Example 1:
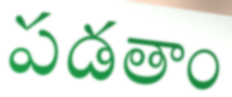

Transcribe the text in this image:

పడతాం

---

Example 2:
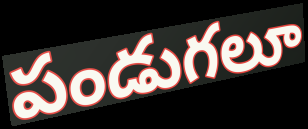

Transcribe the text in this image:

పండుగలూ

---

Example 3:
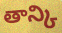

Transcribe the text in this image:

తాన్కి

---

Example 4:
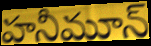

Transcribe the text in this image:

హనీమూన్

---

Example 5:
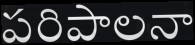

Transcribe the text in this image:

పరిపాలనా